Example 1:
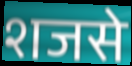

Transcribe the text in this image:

शजसे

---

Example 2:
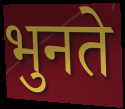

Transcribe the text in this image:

भुनते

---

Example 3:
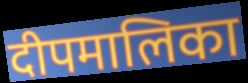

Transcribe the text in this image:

दीपमालिका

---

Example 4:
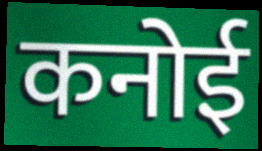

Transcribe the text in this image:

कनोई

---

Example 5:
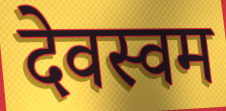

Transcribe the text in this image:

देवस्वम